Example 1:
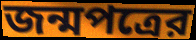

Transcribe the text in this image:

জন্মপত্রের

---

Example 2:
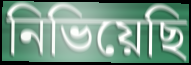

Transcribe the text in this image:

নিভিয়েছি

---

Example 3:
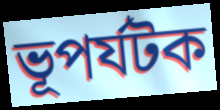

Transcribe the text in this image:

ভূপর্যটক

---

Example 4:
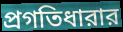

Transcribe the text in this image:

প্রগতিধারার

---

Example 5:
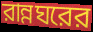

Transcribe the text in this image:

রান্নঘরের